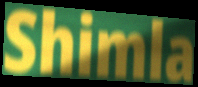
Shimla